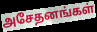
அசேதனங்கள்